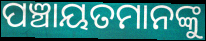
ପଞ୍ଚାୟତମାନଙ୍କୁ